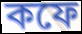
কফে